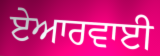
ਏਆਰਵਾਈ